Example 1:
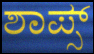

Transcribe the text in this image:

ಶಾಪ್ಸ್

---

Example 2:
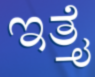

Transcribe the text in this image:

ಇತ್ತೈ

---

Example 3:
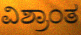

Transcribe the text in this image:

ವಿಶ್ರಾಂತ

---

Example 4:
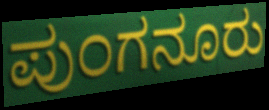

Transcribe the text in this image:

ಪುಂಗನೂರು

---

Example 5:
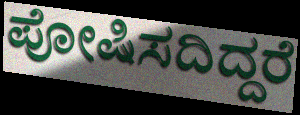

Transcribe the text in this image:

ಪೋಷಿಸದಿದ್ದರೆ